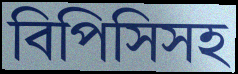
বিপিসিসহ